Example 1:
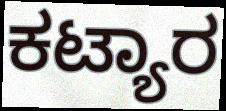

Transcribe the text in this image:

ಕಟ್ಯಾರ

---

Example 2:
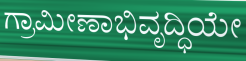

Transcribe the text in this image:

ಗ್ರಾಮೀಣಾಭಿವೃದ್ಧಿಯೇ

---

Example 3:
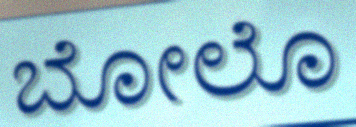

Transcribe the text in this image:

ಬೋಲೊ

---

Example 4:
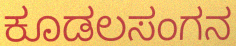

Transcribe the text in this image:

ಕೂಡಲಸಂಗನ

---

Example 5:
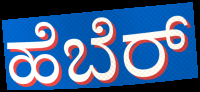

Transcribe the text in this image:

ಹೆಬೆರ್